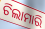
ଚିଲାମାରି